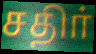
சதிர்